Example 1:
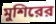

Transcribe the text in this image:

মুশিরের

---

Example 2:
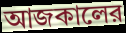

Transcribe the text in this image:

আজকালের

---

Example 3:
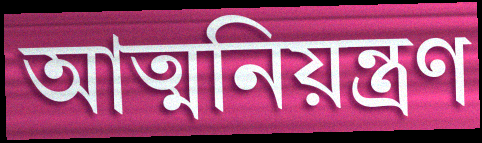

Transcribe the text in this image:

আত্মনিয়ন্ত্রণ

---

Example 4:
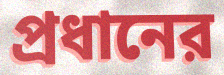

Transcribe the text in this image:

প্রধানের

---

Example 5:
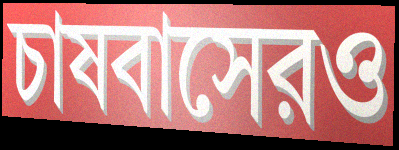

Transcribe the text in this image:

চাষবাসেরও